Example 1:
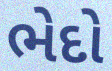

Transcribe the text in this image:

ભેદો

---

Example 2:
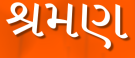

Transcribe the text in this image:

શ્રમણ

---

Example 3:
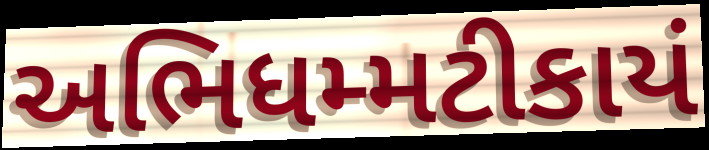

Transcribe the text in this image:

અભિધમ્મટીકાયં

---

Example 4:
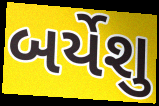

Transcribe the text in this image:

બર્યેશુ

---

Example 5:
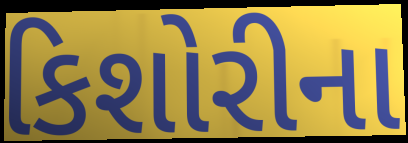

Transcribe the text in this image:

કિશોરીના